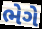
ભેગે